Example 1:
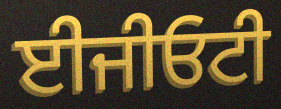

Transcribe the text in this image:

ਈਜੀਓਟੀ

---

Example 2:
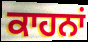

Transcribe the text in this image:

ਕਾਹਨਾਂ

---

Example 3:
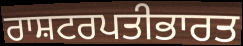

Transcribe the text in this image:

ਰਾਸ਼ਟਰਪਤੀਭਾਰਤ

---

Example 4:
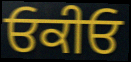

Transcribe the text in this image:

ਓਕੀਓ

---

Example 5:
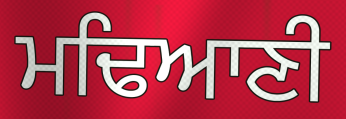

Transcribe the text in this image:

ਮਢਿਆਣੀ